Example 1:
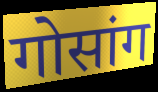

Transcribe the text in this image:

गोसांग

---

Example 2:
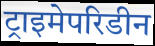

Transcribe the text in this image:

ट्राइमेपरिडीन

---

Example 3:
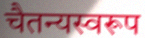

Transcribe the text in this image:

चैतन्यस्वरूप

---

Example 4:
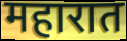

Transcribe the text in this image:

महारात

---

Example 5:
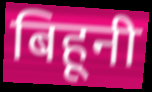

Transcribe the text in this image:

बिहूनी